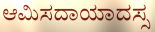
ಆಮಿಸದಾಯಾದಸ್ಸ